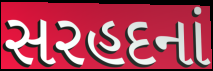
સરહદનાં